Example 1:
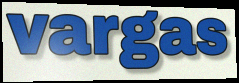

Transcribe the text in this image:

vargas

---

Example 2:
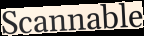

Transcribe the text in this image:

Scannable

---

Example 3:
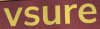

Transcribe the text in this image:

vsure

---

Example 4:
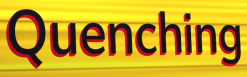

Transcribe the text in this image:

Quenching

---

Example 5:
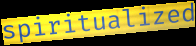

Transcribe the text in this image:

spiritualized